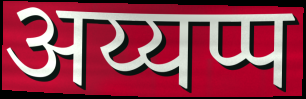
अय्यप्प